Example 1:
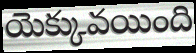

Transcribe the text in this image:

యెక్కువయింది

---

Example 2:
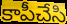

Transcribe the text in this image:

కాపీచేసి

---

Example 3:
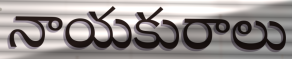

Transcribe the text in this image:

నాయకురాలు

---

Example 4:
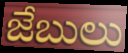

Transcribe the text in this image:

జేబులు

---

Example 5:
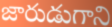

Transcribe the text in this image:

జారుడుగాని